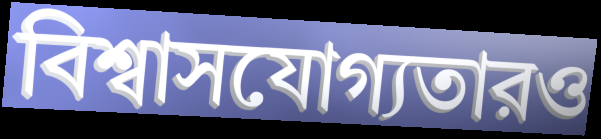
বিশ্বাসযোগ্যতারও